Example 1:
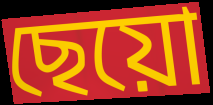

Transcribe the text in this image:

ছেয়ো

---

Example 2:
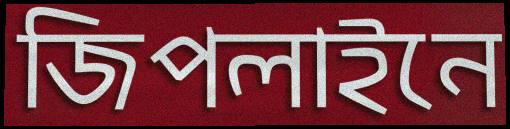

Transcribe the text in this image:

জিপলাইনে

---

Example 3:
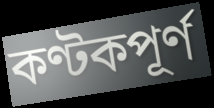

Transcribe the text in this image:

কণ্টকপূর্ণ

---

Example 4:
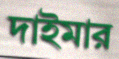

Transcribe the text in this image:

দাইমার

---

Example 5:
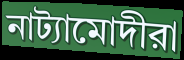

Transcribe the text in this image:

নাট্যামোদীরা